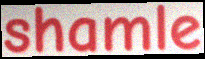
shamle